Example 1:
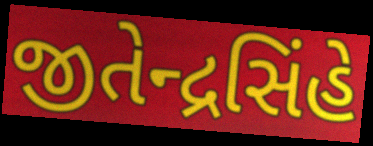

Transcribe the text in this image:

જીતેન્દ્રસિંહે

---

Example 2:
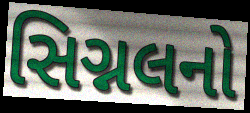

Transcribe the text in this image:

સિગ્નલનો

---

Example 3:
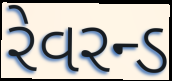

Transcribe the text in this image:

રેવરન્ડ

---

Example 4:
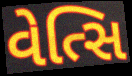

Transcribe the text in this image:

વેત્સિ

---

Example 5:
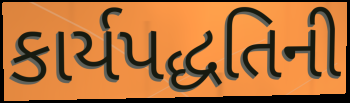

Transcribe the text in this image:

કાર્યપદ્ધતિની